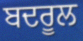
ਬਦਰੂਲ